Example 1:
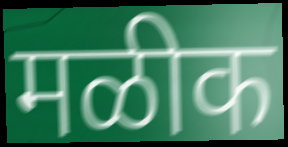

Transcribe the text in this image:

मळीक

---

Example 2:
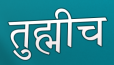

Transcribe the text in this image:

तुह्मीच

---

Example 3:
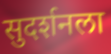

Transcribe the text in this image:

सुदर्शनला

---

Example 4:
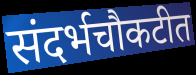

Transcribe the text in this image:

संदर्भचौकटीत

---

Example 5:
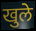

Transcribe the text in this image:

खुले